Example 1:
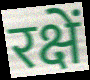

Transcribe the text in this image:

रक्षें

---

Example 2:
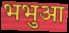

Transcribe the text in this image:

भभुआ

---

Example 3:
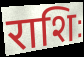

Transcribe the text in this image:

राशिः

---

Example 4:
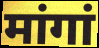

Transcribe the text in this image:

मांगां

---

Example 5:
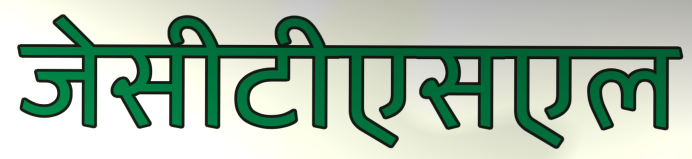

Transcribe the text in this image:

जेसीटीएसएल